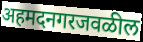
अहमदनगरजवळील